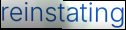
reinstating